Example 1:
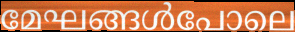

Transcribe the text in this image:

മേഘങ്ങൾപോലെ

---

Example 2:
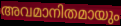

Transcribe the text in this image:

അവമാനിതമായും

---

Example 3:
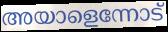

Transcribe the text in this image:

അയാളെന്നോട്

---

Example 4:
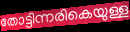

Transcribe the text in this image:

തോട്ടിന്നരികെയുള്ള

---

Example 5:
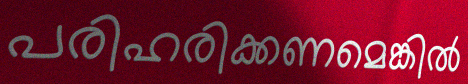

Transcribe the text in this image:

പരിഹരിക്കണമെങ്കിൽ